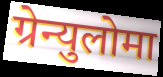
ग्रेन्युलोमा